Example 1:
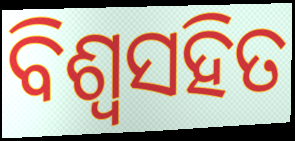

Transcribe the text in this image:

ବିଶ୍ଵସହିତ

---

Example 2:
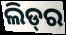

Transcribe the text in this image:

ଲିଡ୍‌ର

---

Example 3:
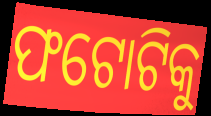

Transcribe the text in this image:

ଫଟୋଟିକୁ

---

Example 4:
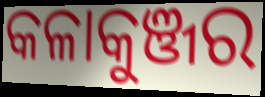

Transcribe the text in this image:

କଳାକୁଞ୍ଜର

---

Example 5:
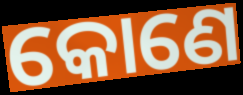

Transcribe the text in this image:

କୋଣେ